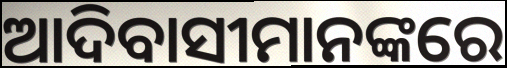
ଆଦିବାସୀମାନଙ୍କରେ